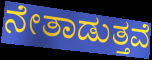
ನೇತಾಡುತ್ತವೆ